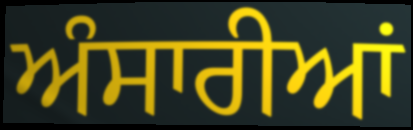
ਅੰਸਾਰੀਆਂ